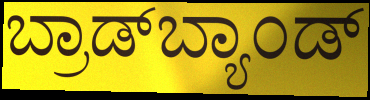
ಬ್ರಾಡ್‌ಬ್ಯಾಂಡ್